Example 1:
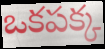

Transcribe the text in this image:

ఒకపక్క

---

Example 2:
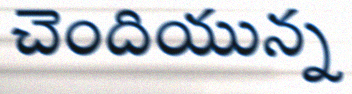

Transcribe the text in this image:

చెందియున్న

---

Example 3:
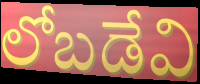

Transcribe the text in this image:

లోబడేవి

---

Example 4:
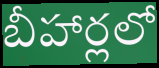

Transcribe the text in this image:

బీహార్లలో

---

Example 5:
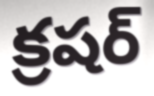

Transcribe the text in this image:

క్రషర్